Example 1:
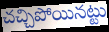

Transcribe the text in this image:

చచ్చిపోయినట్టు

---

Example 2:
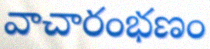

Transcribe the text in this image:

వాచారంభణం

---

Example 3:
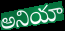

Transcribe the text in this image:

అనియా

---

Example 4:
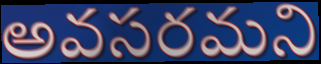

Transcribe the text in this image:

అవసరమని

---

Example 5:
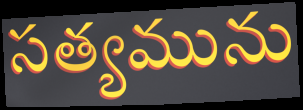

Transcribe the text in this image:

సత్యమును